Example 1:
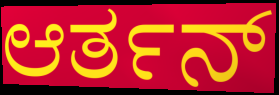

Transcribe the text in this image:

ಆರ್ತನ್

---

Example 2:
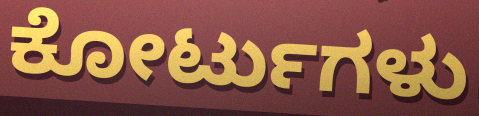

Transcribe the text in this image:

ಕೋರ್ಟುಗಳು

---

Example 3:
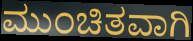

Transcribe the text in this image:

ಮುಂಚಿತವಾಗಿ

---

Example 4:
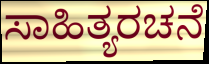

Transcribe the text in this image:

ಸಾಹಿತ್ಯರಚನೆ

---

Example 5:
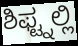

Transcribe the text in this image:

ಶಿಫ್ಟ್ನಲ್ಲಿ